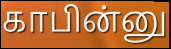
காபின்னு